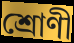
শ্রোণী